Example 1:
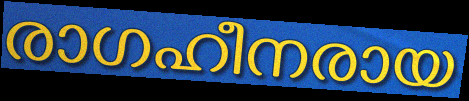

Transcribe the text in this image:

രാഗഹീനരായ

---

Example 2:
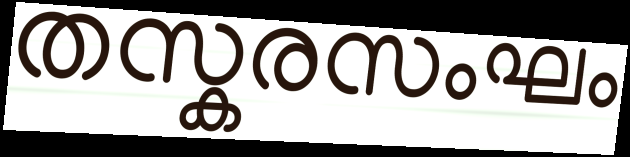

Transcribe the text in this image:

തസ്കരസംഘം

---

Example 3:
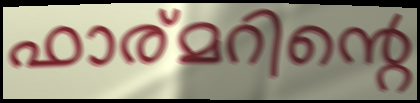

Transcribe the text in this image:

ഫാര്മറിന്റെ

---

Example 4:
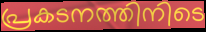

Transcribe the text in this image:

പ്രകടനത്തിനിടെ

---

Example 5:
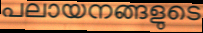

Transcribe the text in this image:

പലായനങ്ങളുടെ